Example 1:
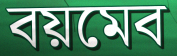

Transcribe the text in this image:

বয়মেব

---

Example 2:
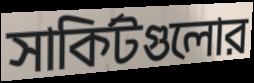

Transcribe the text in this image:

সার্কিটগুলোর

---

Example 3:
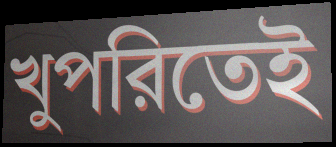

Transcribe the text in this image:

খুপরিতেই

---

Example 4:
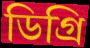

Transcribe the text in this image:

ডিগ্রি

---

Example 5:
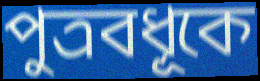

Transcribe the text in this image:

পুত্রবধূকে